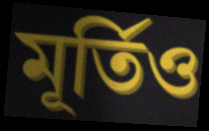
মূৰ্তিও